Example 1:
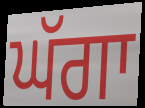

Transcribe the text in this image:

ਘੱਗਾ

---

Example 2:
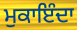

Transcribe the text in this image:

ਮੁਕਾਇੰਦਾ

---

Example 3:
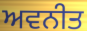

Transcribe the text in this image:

ਅਵਨੀਤ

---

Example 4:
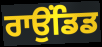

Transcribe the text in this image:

ਰਾਉਂਡਿਡ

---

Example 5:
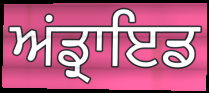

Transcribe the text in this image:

ਅਂਡ੍ਰਾਇਡ